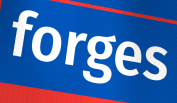
forges